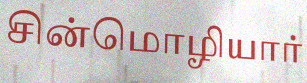
சின்மொழியார்